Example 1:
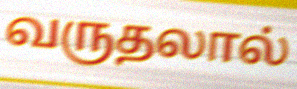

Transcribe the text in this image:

வருதலால்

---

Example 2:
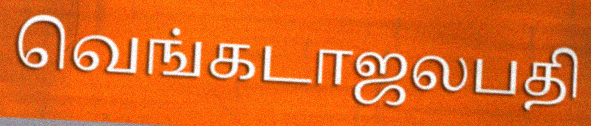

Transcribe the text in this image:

வெங்கடாஜலபதி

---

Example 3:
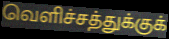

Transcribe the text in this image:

வெளிச்சத்துக்குக்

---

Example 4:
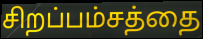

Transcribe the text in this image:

சிறப்பம்சத்தை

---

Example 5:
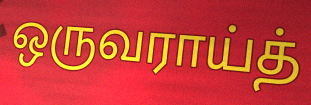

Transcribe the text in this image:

ஒருவராய்த்